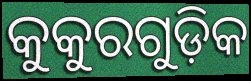
କୁକୁରଗୁଡ଼ିକ